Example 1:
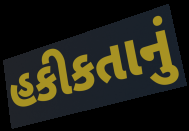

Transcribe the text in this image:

હકીકતાનું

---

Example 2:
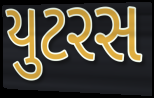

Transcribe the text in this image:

યુટરસ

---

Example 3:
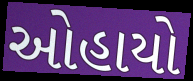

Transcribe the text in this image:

ઓહાયો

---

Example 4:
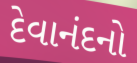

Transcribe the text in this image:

દેવાનંદનો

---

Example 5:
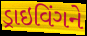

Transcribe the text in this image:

ડ્રાઇવિંગને